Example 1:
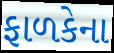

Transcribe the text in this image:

ફાળકેના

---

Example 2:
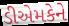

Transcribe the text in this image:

ડીએમકેને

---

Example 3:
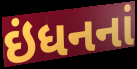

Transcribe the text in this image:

ઇંધનનાં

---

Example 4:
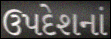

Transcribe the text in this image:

ઉપદેશનાં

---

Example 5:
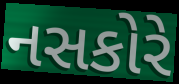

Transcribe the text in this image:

નસકોરે